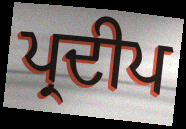
ਪ੍ਰਦੀਪ